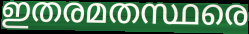
ഇതരമതസ്ഥരെ